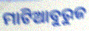
ମାଟିଆବୁରୁଜ